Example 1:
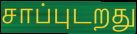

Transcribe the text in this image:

சாப்புடறது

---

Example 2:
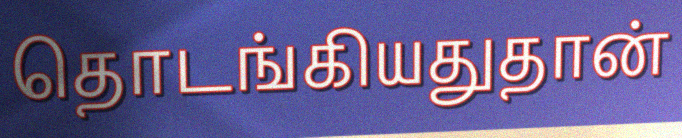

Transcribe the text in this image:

தொடங்கியதுதான்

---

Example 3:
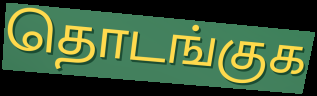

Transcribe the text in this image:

தொடங்குக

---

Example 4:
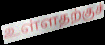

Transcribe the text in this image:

உள்ளதற்குச்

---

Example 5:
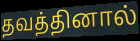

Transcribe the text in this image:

தவத்தினால்